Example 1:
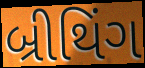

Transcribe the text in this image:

બ્રીથિંગ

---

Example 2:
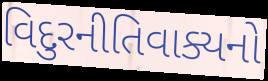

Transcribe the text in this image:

વિદુરનીતિવાક્યનો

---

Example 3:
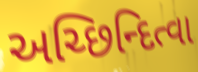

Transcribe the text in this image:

અચ્છિન્દિત્વા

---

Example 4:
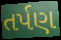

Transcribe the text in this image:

તર્પણ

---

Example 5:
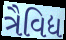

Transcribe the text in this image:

ત્રૈવિદ્ય